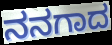
ನನಗಾದ